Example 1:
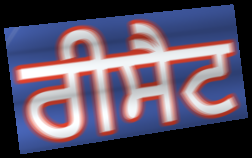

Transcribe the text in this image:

ਰੀਸੈਟ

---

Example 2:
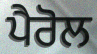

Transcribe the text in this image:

ਪੈਰੋਲ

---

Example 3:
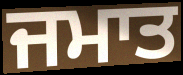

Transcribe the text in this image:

ਜਮਾਤ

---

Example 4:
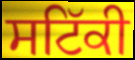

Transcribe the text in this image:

ਸਟਿੱਕੀ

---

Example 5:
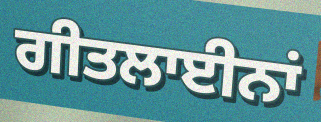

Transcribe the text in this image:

ਗੀਤਲਾਈਨਾਂ